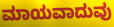
ಮಾಯವಾದುವು